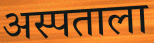
अस्पताला